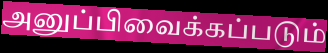
அனுப்பிவைக்கப்படும்